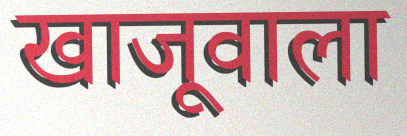
खाजूवाला